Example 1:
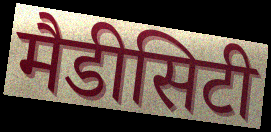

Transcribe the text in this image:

मैडीसिटी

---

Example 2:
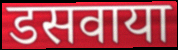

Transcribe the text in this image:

डसवाया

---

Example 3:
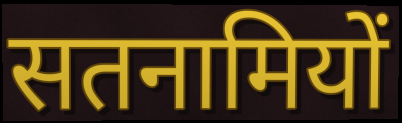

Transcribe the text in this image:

सतनामियों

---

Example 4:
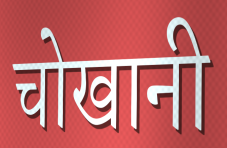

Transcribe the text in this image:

चोखानी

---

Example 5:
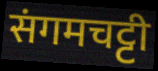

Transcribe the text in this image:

संगमचट्टी